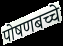
पोषणबच्चे